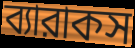
ব্যারাকস